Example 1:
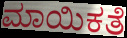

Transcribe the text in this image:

ಮಾಯಿಕತೆ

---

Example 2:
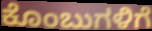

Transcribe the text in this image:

ಕೊಂಬುಗಳಿಗೆ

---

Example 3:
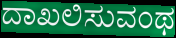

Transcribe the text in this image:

ದಾಖಲಿಸುವಂಥ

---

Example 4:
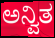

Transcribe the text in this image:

ಅನ್ವಿತ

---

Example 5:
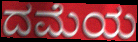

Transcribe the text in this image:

ದಮೆಯ